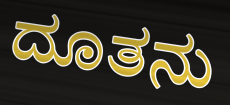
ದೂತನು